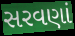
સરવણાં